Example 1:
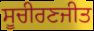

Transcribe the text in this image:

ਸੂਚੀਰਣਜੀਤ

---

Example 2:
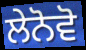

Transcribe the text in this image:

ਲੇਨੋਵੋ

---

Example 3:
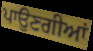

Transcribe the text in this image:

ਪਾਉਣਗੀਆਂ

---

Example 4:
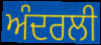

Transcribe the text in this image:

ਅੰਦਰਲੀ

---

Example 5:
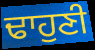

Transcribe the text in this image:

ਢਾਹੁਣੀ